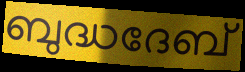
ബുദ്ധദേബ്